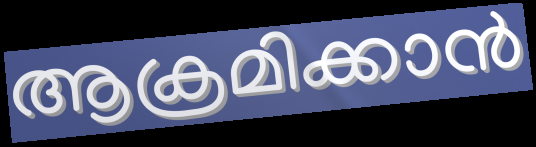
ആക്രമിക്കാൻ